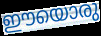
ഈയൊരു